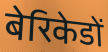
बेरिकेडों